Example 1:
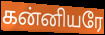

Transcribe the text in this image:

கன்னியரே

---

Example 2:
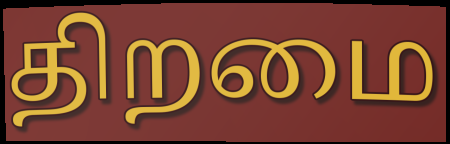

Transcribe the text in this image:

திறமை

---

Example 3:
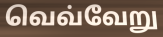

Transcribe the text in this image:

வெவ்வேறு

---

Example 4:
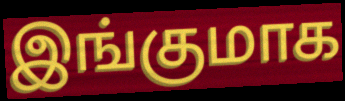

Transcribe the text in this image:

இங்குமாக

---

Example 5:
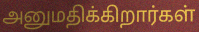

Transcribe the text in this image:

அனுமதிக்கிறார்கள்